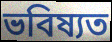
ভবিষ্যত